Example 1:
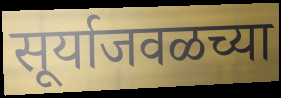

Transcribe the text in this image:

सूर्याजवळच्या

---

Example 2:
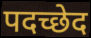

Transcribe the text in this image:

पदच्छेद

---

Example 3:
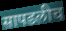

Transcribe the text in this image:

सापडलीच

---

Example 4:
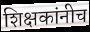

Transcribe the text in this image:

शिक्षकांनीच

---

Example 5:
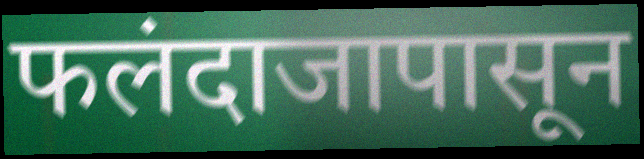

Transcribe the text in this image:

फलंदाजापासून